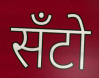
सँटो